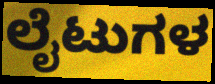
ಲೈಟುಗಳ